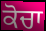
ਕੋਚਾ